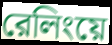
রেলিংয়ে